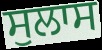
ਸੁਲਾਸ